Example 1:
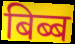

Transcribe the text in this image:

बिब्ब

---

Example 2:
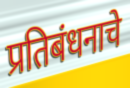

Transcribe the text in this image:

प्रतिबंधनाचे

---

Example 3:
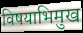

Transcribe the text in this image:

विषयाभिमुख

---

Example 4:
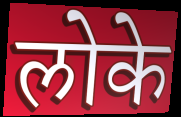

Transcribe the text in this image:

लोके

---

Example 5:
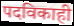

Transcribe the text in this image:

पदविकाही